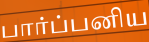
பார்ப்பனிய